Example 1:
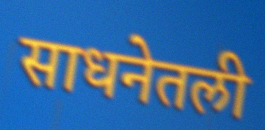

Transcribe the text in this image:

साधनेतली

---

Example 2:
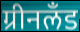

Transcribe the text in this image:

ग्रीनलँड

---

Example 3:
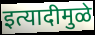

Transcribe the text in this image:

इत्यादीमुळे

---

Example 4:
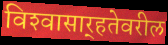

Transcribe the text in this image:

विश्वासार्हतेवरील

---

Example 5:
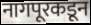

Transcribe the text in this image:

नागपूरकडून